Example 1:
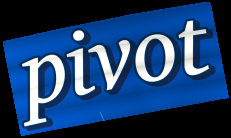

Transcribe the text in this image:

pivot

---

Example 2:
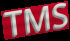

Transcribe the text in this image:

TMS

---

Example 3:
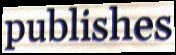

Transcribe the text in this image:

publishes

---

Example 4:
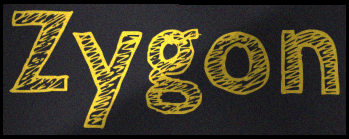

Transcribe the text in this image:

Zygon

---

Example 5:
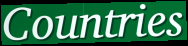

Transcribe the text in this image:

Countries